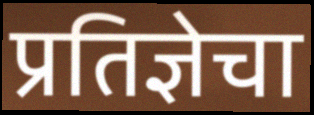
प्रतिज्ञेचा